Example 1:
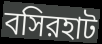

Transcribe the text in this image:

বসিরহাট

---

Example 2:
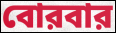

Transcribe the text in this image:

বোরবার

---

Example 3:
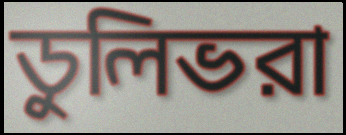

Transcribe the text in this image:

ডুলিভরা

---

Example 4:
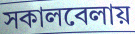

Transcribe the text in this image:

সকালবেলায়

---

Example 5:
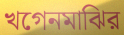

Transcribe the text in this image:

খগেনমাঝির